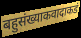
बहुसंख्याकवादाकडं